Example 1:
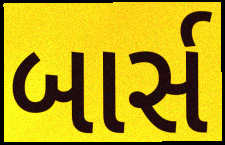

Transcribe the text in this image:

બાર્સ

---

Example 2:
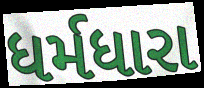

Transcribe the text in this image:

ધર્મધારા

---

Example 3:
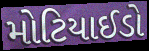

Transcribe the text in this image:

મોટિયાઈડો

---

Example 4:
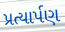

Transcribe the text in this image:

પ્રત્યાર્પણ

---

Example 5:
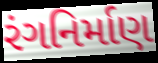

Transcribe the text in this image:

રંગનિર્માણ